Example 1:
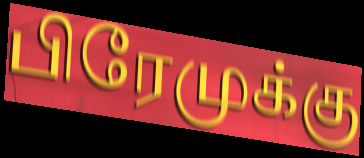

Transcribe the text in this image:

பிரேமுக்கு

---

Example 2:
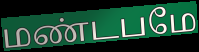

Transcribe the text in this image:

மண்டபமே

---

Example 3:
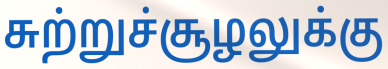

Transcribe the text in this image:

சுற்றுச்சூழலுக்கு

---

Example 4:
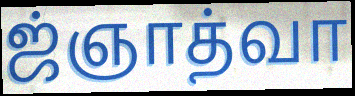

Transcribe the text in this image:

ஜ்ஞாத்வா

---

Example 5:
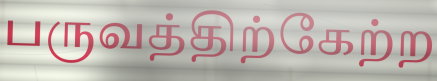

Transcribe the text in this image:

பருவத்திற்கேற்ற